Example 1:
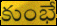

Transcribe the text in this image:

కుంభే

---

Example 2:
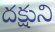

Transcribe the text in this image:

దక్షుని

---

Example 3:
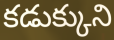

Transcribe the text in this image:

కడుక్కుని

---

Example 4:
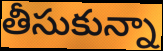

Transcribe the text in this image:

తీసుకున్నా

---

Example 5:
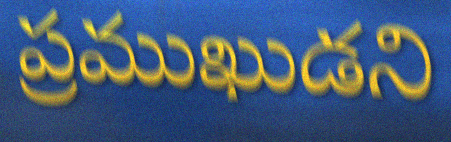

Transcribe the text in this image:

ప్రముఖుడని